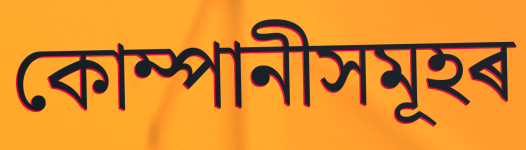
কোম্পানীসমূহৰ